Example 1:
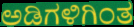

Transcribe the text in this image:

ಅಡಿಗಳಿಗಿಂತ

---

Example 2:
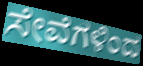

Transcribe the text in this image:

ಸೇವೆಗಳಿಂದ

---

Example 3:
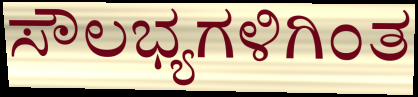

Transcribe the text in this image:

ಸೌಲಭ್ಯಗಳಿಗಿಂತ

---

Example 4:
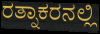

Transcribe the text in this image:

ರತ್ನಾಕರನಲ್ಲಿ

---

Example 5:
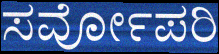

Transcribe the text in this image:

ಸರ್ವೋಪರಿ